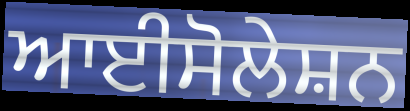
ਆਈਸੋਲੇਸ਼ਨ